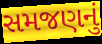
સમજણનું